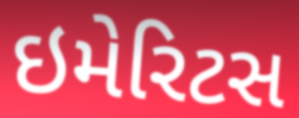
ઇમેરિટસ